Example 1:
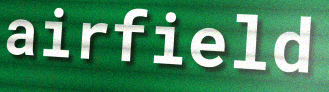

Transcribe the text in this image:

airfield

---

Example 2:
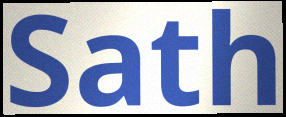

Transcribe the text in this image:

Sath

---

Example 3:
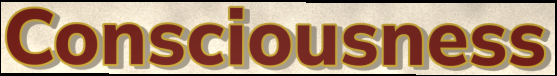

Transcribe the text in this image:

Consciousness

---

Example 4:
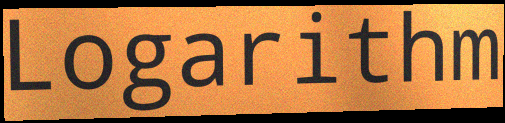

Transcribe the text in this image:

Logarithm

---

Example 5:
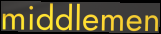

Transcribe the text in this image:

middlemen